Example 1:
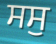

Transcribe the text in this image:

ਸਸੁ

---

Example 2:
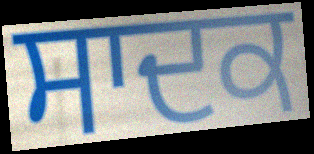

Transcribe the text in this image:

ਸਾਦਕ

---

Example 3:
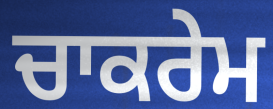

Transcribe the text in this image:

ਚਾਕਰੇਮ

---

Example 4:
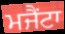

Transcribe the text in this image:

ਮਜੈਂਟਾ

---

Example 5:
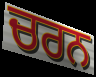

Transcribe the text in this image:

ਚਰਨ